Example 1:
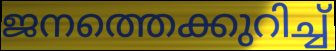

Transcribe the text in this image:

ജനത്തെക്കുറിച്ച്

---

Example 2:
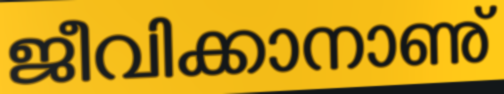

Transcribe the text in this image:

ജീവിക്കാനാണു്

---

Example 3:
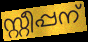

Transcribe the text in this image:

സ്റ്റീപ്പന്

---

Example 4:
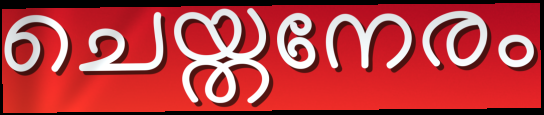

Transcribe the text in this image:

ചെയ്തനേരം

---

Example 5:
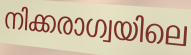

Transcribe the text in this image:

നിക്കരാഗ്വയിലെ